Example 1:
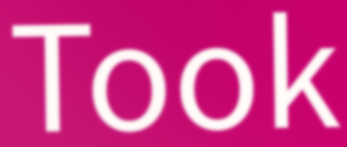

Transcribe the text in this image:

Took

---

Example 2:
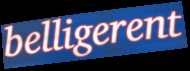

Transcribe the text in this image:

belligerent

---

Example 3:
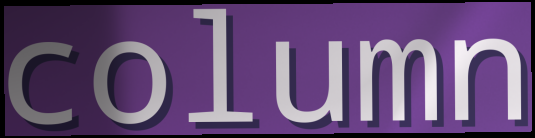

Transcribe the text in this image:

column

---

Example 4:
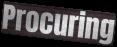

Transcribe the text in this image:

Procuring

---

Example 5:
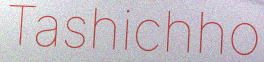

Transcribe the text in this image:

Tashichho